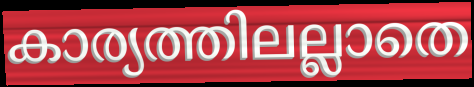
കാര്യത്തിലല്ലാതെ